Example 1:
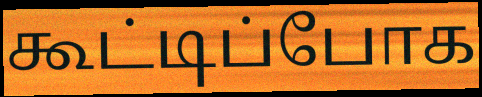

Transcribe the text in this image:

கூட்டிப்போக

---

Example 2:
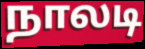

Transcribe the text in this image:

நாலடி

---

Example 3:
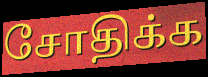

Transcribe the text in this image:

சோதிக்க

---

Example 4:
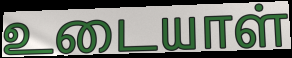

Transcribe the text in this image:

உடையாள்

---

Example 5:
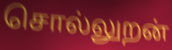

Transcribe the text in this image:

சொல்லுறன்